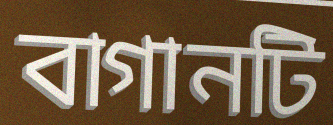
বাগানটি